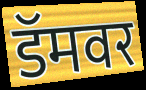
डॅमवर